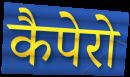
कैपेरो